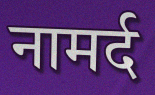
नामर्द